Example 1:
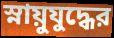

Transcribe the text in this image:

স্নায়ুযুদ্ধের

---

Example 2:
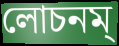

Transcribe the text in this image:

লোচনম্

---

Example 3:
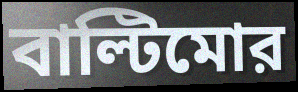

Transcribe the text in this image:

বাল্টিমোর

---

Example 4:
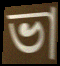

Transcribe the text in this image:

ভা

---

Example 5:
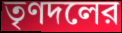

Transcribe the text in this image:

তৃণদলের